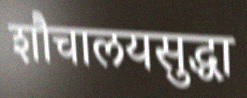
शौचालयसुद्धा